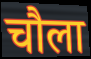
चौला